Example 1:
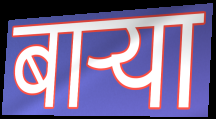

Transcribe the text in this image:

बाऱ्या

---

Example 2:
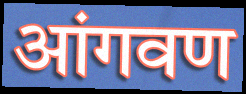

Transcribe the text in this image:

आंगवण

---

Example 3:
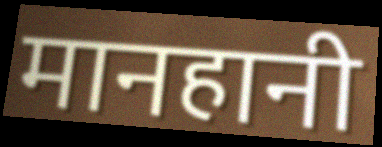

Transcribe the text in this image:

मानहानी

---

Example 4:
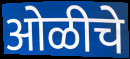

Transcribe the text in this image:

ओळीचे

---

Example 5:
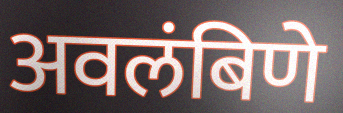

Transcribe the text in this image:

अवलंबिणे